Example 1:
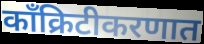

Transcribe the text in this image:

काँक्रिटीकरणात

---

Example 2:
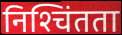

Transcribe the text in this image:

निश्चिंतता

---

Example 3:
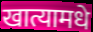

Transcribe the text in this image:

खात्यामधे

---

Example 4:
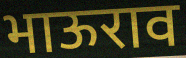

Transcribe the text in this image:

भाऊराव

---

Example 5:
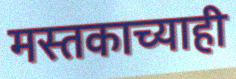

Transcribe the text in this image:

मस्तकाच्याही